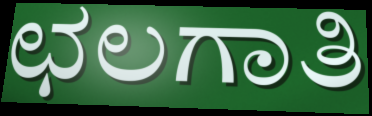
ಛಲಗಾತಿ